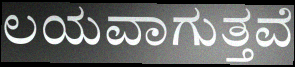
ಲಯವಾಗುತ್ತವೆ